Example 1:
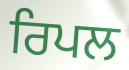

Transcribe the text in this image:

ਰਿਪਲ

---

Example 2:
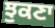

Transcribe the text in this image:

ਝੁਕਣਾ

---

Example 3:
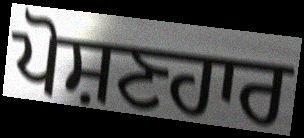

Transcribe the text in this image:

ਪੋਸ਼ਣਹਾਰ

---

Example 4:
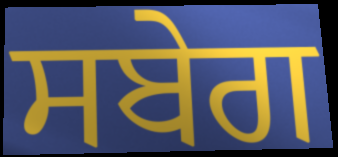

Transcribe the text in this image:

ਸਬੇਗ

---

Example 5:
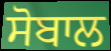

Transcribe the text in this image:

ਸੋਬਾਲ